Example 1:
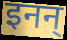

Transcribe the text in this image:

इनन्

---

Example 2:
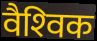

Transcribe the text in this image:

वैश्‍विक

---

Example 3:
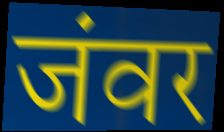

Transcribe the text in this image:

जंवर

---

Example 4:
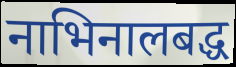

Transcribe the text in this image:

नाभिनालबद्ध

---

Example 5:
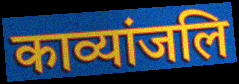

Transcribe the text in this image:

काव्यांजलि